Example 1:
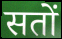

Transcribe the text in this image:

सतों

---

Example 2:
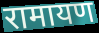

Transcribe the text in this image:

रामायण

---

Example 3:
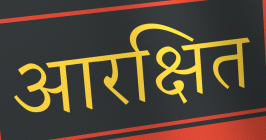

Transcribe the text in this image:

आरक्षित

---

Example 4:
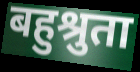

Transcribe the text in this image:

बहुश्रुता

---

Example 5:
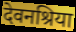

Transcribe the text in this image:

देवनश्रिया